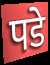
पडे